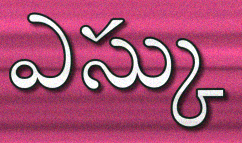
ఎస్కు